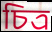
চিত্ৰ